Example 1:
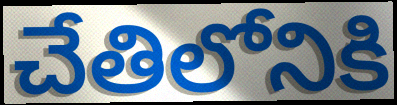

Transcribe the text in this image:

చేతిలోనికి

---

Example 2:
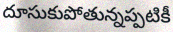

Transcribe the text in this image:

దూసుకుపోతున్నప్పటికీ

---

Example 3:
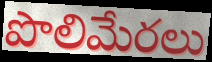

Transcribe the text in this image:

పొలిమేరలు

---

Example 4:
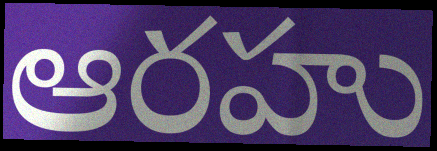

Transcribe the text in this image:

ఆరహు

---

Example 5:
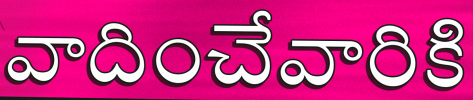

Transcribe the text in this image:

వాదించేవారికి